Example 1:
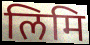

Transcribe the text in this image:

लिमि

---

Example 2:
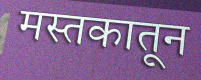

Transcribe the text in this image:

मस्तकातून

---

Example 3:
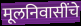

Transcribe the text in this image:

मूलनिवासींचे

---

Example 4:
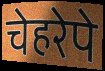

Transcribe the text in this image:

चेहरेपे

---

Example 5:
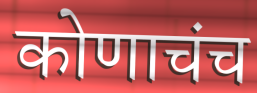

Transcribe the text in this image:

कोणाचंच